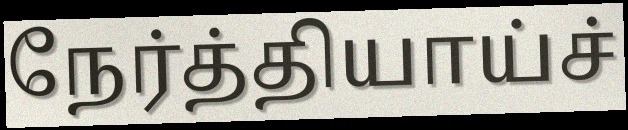
நேர்த்தியாய்ச்